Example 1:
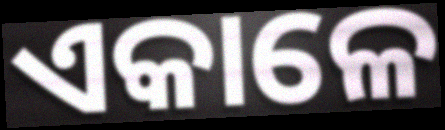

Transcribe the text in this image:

ଏକାଳେ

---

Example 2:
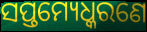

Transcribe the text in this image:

ସପ୍ତମ୍ୟେଧ୍କରଣେ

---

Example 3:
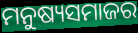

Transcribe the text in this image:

ମନୁଷ୍ୟସମାଜର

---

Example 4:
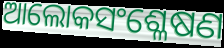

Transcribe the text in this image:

ଆଲୋକସଂଶ୍ଳେଷଣ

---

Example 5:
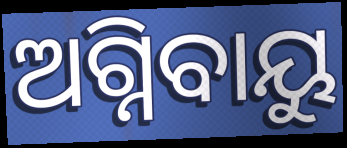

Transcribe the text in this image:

ଅଗ୍ନିବାୟୁ